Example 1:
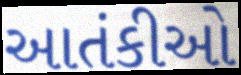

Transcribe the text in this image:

આતંકીઓ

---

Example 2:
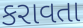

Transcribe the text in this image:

કરાવતા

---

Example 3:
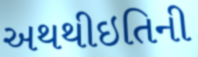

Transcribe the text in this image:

અથથીઇતિની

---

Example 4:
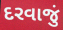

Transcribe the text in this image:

દરવાજું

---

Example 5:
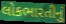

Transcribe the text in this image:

લોકભારતીનું